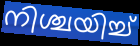
നിശ്ചയിച്ച്